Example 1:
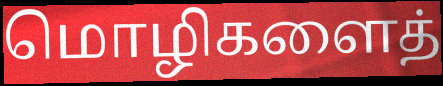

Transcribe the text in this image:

மொழிகளைத்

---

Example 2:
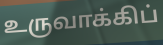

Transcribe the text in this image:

உருவாக்கிப்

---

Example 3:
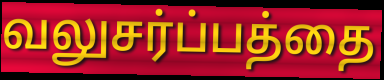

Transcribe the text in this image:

வலுசர்ப்பத்தை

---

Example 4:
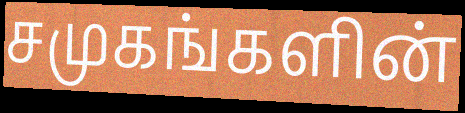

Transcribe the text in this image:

சமுகங்களின்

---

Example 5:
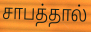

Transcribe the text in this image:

சாபத்தால்